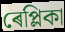
ৰেপ্লিকা